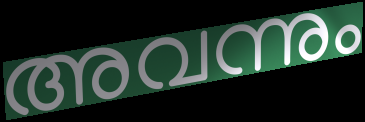
അവന്നും